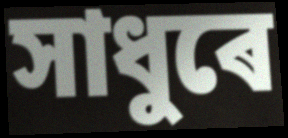
সাধুৰে